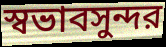
স্বভাবসুন্দর